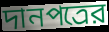
দানপত্রের